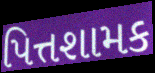
પિત્તશામક